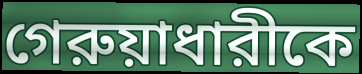
গেরুয়াধারীকে